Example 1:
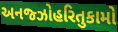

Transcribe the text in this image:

અનજ્ઝોહરિતુકામો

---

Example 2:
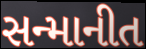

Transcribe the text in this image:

સન્માનીત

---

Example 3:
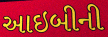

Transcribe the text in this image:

આઇબીની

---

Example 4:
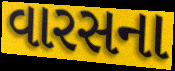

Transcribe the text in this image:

વારસના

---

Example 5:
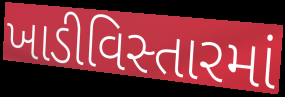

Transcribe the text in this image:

ખાડીવિસ્તારમાં